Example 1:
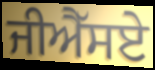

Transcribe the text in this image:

ਜੀਐੱਸਏ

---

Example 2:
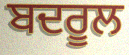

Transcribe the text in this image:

ਬਦਰੂਲ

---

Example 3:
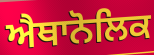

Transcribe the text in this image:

ਐਥਾਨੋਲਿਕ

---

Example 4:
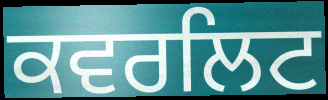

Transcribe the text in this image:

ਕਵਰਲਿਟ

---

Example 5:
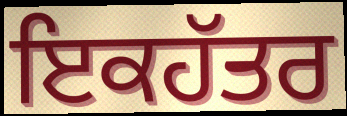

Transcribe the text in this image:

ਇਕਹੱਤਰ